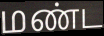
மண்ட